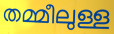
തമ്മീലുള്ള